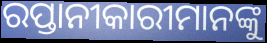
ରପ୍ତାନୀକାରୀମାନଙ୍କୁ